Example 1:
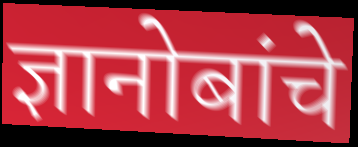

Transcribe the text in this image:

ज्ञानोबांचे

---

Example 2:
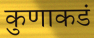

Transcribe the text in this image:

कुणाकडं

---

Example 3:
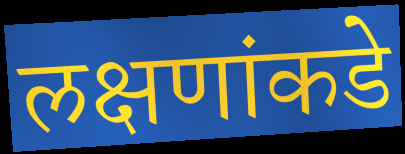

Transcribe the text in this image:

लक्षणांकडे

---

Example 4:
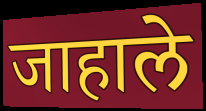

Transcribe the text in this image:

जाहाले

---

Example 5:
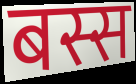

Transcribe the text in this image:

बस्स